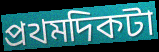
প্রথমদিকটা